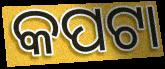
କପଟା